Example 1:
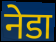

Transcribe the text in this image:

नेडा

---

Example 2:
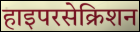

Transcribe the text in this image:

हाइपरसेक्रिशन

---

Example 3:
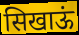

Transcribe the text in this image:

सिखाऊं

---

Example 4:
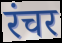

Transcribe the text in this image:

रंचर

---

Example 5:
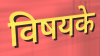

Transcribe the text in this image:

विषयके